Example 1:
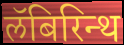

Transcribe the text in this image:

लॅबिरिन्थ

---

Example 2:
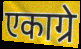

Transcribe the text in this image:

एकाग्रे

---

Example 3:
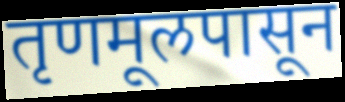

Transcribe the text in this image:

तृणमूलपासून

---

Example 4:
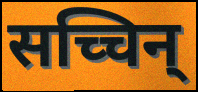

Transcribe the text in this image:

सच्चिन्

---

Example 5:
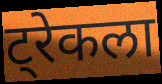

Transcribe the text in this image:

ट्रेकला